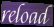
reload